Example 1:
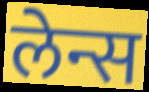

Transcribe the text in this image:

लेन्स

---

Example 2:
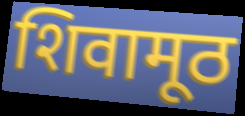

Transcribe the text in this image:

शिवामूठ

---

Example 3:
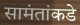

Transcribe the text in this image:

सामंतांकडे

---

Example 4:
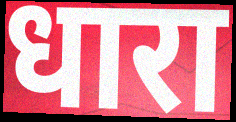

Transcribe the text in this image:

धारा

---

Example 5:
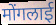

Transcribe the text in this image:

मोंगलाई